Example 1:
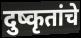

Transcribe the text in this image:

दुष्कृतांचे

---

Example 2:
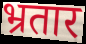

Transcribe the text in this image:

भ्रतार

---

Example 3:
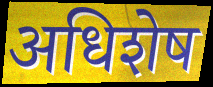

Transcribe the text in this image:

अधिशेष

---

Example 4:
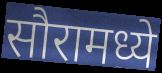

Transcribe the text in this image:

सौरामध्ये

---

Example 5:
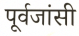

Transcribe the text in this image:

पूर्वजांसी